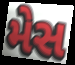
મેસ